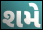
શમે